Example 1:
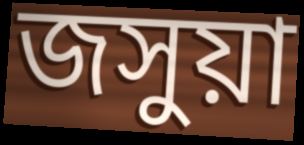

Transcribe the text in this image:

জসুয়া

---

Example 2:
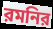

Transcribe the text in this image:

রমনির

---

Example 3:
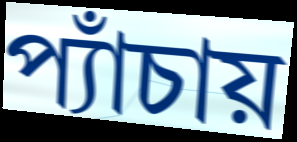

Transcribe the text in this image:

প্যাঁচায়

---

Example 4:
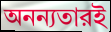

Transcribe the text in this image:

অনন্যতারই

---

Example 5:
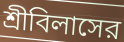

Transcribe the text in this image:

শ্রীবিলাসের